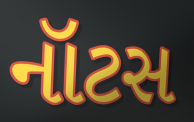
નૉટસ